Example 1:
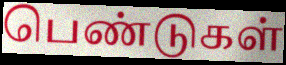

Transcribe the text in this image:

பெண்டுகள்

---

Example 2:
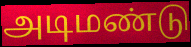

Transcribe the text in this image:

அடிமண்டு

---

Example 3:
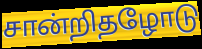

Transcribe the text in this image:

சான்றிதழோடு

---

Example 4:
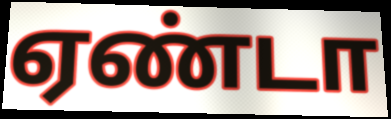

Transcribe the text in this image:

ஏண்டா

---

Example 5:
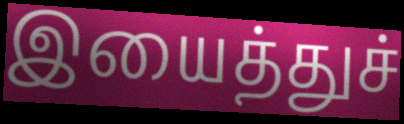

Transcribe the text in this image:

இயைத்துச்